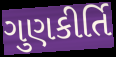
ગુણકીર્તિ